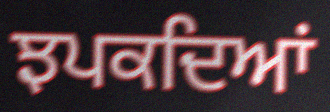
ਝਪਕਦਿਆਂ